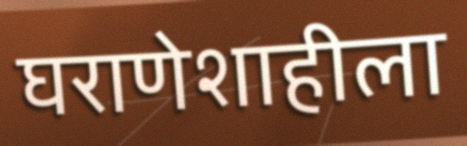
घराणेशाहीला